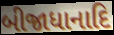
બીજાધાનાદિ